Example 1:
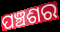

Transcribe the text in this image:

ପଞ୍ଚଶର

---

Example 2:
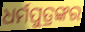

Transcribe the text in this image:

ଧର୍ମପୁତ୍ରଙ୍କର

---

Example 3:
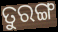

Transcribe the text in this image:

ତୁରଙ୍ଗ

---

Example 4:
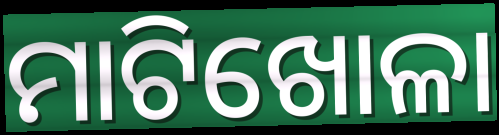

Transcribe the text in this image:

ମାଟିଖୋଳା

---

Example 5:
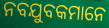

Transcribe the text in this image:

ନବଯୁବକମାନେ